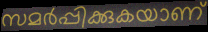
സമർപ്പിക്കുകയാണ്